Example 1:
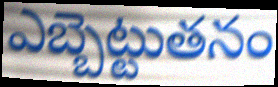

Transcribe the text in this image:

ఎబ్బెట్టుతనం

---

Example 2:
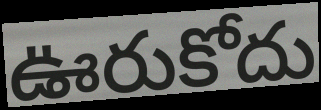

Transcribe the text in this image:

ఊరుకోదు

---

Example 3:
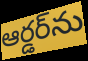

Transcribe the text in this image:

ఆర్డర్‌ను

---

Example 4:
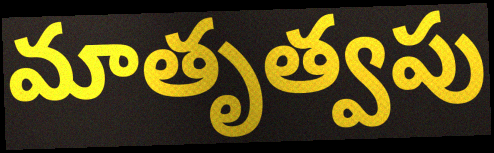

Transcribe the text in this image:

మాతృత్వపు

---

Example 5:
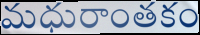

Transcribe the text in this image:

మధురాంతకం